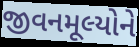
જીવનમૂલ્યોને